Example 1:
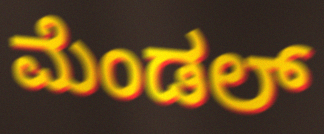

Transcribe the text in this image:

ಮೆಂಡಲ್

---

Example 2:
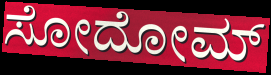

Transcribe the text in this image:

ಸೋದೋಮ್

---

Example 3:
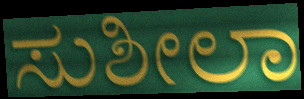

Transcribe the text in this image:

ಸುಶೀಲಾ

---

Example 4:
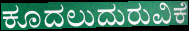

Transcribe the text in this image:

ಕೂದಲುದುರುವಿಕೆ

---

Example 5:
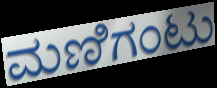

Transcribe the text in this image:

ಮಣಿಗಂಟು